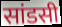
सांडसी